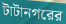
টাটানগরের